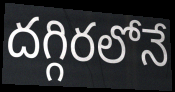
దగ్గిరలోనే